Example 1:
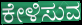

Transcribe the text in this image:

ಕೇಳಿಸುವ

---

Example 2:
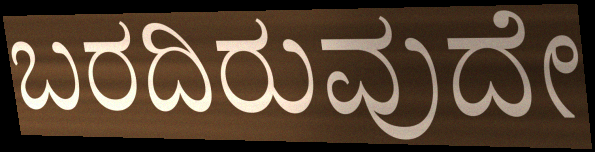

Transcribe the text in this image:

ಬರದಿರುವುದೇ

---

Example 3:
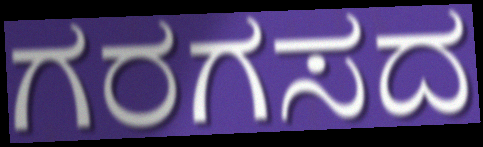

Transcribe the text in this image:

ಗರಗಸದ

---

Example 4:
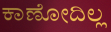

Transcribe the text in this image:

ಕಾಣೋದಿಲ್ಲ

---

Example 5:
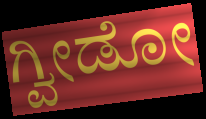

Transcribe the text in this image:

ಗ್ವೀಡೋ